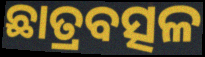
ଛାତ୍ରବତ୍ସଳ